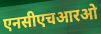
एनसीएचआरओ